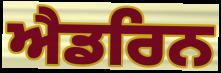
ਐਡਰਿਨ